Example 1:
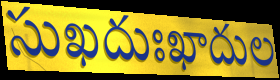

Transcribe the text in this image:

సుఖదుఃఖాదుల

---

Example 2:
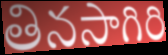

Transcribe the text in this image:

తినసాగిరి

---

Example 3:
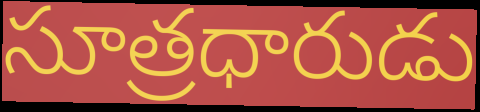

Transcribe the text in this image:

సూత్రధారుడు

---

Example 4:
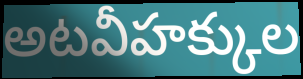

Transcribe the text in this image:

అటవీహక్కుల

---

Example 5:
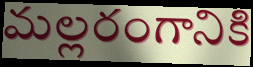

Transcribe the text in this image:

మల్లరంగానికి